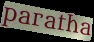
paratha